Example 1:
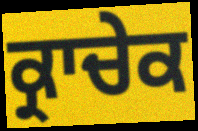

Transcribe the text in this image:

ਕ੍ਰਾਚੇਕ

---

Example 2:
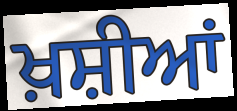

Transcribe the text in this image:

ਖ਼ਸ਼ੀਆਂ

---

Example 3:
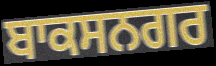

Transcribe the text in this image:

ਬਾਕਸਨਗਰ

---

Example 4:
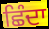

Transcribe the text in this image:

ਛਿੰਦਾ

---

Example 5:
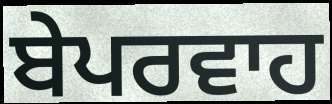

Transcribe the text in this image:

ਬੇਪਰਵਾਹ